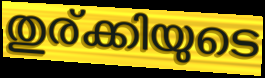
തുര്ക്കിയുടെ